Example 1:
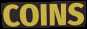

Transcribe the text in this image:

COINS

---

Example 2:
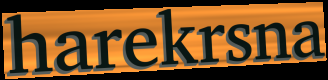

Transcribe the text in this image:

harekrsna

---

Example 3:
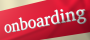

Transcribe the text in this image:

onboarding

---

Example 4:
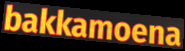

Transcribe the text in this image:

bakkamoena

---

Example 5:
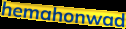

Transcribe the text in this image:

hemahonwad